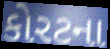
કોરટના